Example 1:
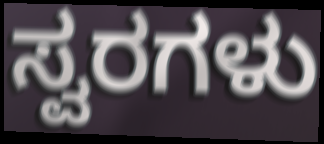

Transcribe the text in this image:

ಸ್ವರಗಳು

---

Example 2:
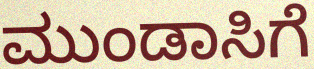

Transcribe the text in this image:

ಮುಂಡಾಸಿಗೆ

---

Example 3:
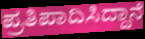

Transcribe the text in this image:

ಪ್ರತಿಪಾದಿಸಿದ್ದಾನೆ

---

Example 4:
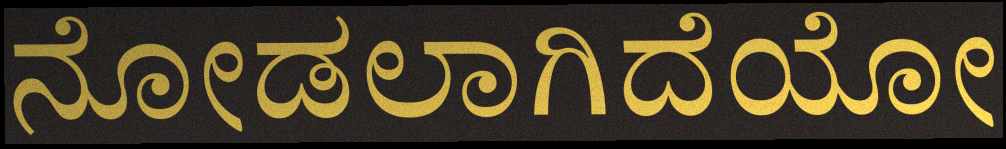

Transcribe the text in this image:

ನೋಡಲಾಗಿದೆಯೋ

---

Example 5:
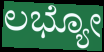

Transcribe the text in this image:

ಲಭ್ಯೋ